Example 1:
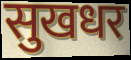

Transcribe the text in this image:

सुखधर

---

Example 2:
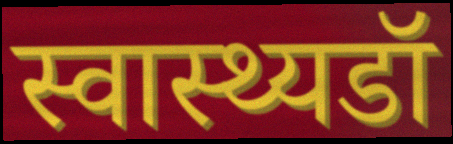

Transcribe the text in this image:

स्वास्थ्यडॉ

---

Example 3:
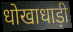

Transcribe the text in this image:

धोखाधाड़ी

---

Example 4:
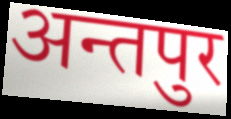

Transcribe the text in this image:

अन्तपुर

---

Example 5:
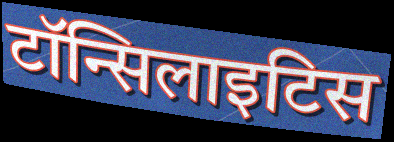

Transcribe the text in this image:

टॉन्सिलाइटिस